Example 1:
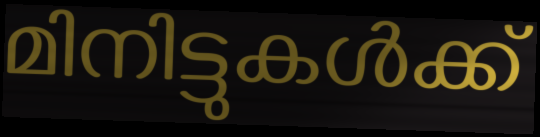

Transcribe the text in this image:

മിനിട്ടുകൾക്ക്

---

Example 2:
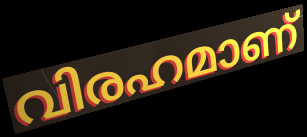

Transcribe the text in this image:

വിരഹമാണ്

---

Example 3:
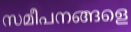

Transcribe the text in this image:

സമീപനങ്ങളെ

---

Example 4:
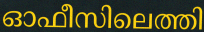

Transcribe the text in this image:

ഓഫീസിലെത്തി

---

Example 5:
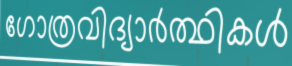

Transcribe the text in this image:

ഗോത്രവിദ്യാർത്ഥികൾ